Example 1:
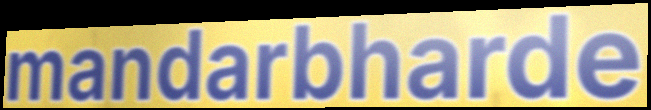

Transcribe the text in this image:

mandarbharde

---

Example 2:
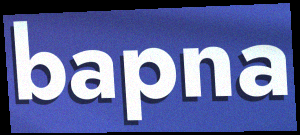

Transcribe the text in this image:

bapna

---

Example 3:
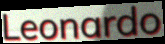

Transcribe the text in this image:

Leonardo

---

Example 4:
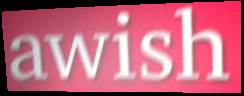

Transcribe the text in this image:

awish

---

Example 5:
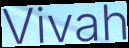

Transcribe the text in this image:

Vivah